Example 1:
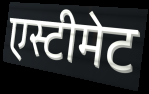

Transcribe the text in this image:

एस्टीमेट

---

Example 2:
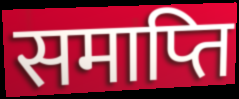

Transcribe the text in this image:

समाप्‍ति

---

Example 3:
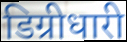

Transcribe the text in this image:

डिग्रीधारी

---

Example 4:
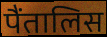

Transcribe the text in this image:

पैंतालिस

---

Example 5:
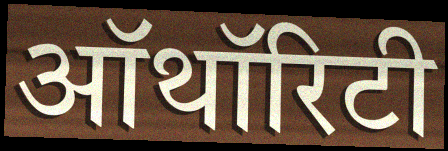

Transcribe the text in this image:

ऑथॉरिटी